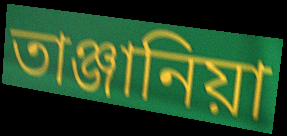
তাঞ্জানিয়া